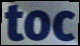
toc